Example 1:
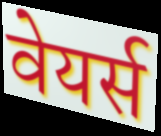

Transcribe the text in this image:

वेयर्स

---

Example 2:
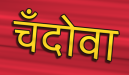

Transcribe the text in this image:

चँदोवा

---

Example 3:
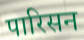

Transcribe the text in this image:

पारिसन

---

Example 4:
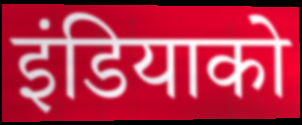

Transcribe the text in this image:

इंडियाको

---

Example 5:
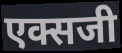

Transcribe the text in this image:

एक्सजी